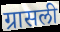
ग्रासली